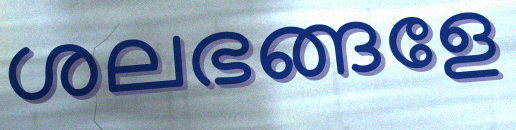
ശലഭങ്ങളേ